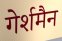
गेर्शमैन